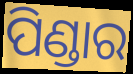
ପିଣ୍ଡାର